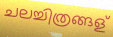
ചലച്ചിത്രങ്ങള്